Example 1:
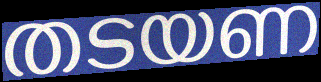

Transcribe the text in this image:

തടയണ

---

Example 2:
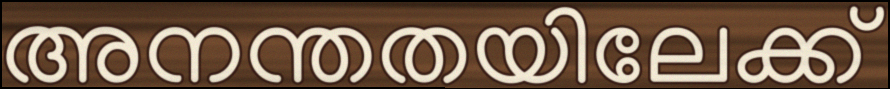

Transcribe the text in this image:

അനന്തതയിലേക്ക്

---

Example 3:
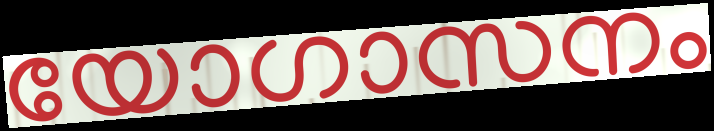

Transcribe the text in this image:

യോഗാസനം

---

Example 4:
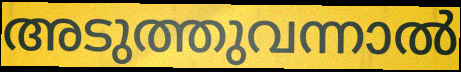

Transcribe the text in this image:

അടുത്തുവന്നാൽ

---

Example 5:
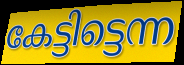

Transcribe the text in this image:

കേട്ടിട്ടെന്ന